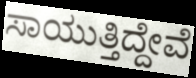
ಸಾಯುತ್ತಿದ್ದೇವೆ